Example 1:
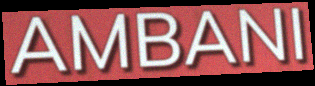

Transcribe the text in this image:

AMBANI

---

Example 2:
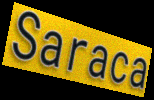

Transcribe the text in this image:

Saraca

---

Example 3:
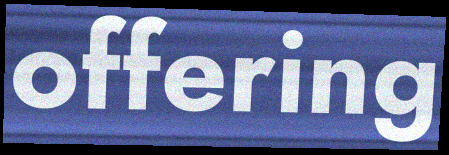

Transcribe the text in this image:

offering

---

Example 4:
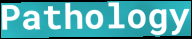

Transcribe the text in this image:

Pathology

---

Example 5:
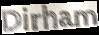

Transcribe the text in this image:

Dirham